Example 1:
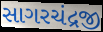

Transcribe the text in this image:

સાગરચંદ્રજી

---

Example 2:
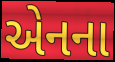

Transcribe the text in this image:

એનના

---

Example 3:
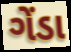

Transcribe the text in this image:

ગેંડા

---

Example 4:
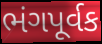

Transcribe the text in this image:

ભંગપૂર્વક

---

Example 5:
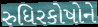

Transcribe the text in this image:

રુધિરકોષોને